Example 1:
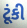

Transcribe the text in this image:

ટૂંકી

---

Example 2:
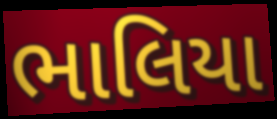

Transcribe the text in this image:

ભાલિયા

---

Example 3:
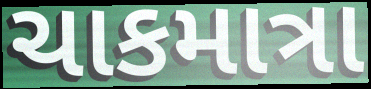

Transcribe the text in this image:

ચાકમાત્રા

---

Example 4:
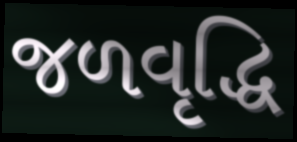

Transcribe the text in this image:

જળવૃદ્ધિ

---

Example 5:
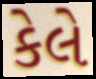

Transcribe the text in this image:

કેલે